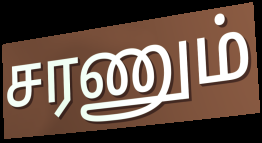
சரணும்